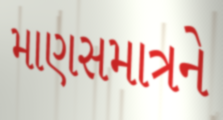
માણસમાત્રને